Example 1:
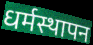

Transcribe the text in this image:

धर्मस्थापन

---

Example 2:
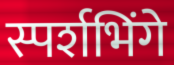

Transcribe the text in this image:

स्पर्शभिंगे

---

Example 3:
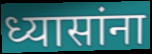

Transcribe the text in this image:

ध्यासांना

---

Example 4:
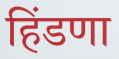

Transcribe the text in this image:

हिंडणा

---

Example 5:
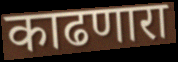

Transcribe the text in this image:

काढणारा